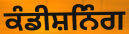
ਕੰਡੀਸ਼ਨਿੰਗ